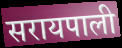
सरायपाली